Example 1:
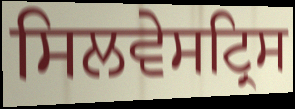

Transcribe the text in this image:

ਸਿਲਵੇਸਟ੍ਰਿਸ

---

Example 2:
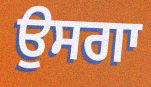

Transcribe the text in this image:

ਉਸਗਾ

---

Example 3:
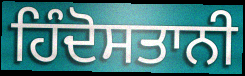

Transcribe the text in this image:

ਹਿੰਦੋਸਤਾਨੀ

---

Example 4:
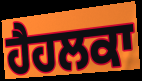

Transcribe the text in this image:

ਹੈਹਲਕਾ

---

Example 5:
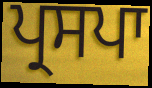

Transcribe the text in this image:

ਪ੍ਰਸਪਾ